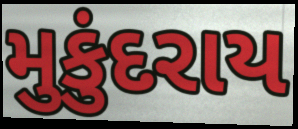
મુકુંદરાય